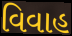
વિવાહ